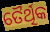
ତୈର୍ଥିକ